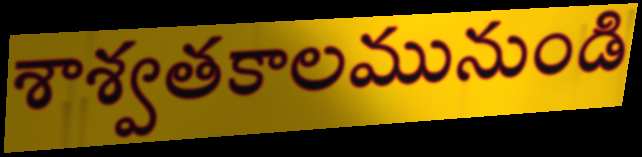
శాశ్వతకాలమునుండి